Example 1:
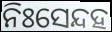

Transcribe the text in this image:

ନିଃସେନ୍ଦହ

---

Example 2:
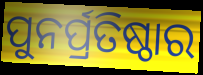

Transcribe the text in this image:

ପୁନର୍ପ୍ରତିଷ୍ଠାର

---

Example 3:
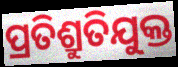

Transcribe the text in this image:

ପ୍ରତିଶ୍ରୁତିଯୁକ୍ତ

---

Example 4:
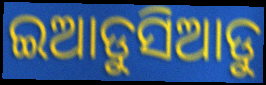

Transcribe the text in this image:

ଇଆଡୁସିଆଡୁ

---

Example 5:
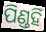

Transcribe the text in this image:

ପିଣ୍ଡହିଁ